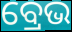
ବ୍ରେଭ